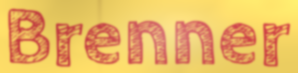
Brenner